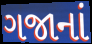
ગજાનાં